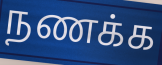
நணக்க